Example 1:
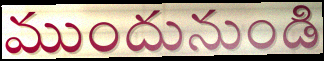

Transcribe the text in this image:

ముందునుండి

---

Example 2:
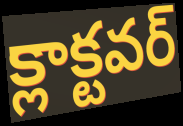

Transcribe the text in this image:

క్లాక్టవర్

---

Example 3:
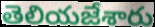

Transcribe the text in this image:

తెలియజేశారు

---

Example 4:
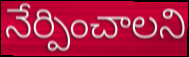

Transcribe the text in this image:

నేర్పించాలని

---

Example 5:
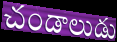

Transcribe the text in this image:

చండాలుడు